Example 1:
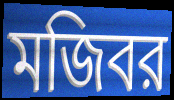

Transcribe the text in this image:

মজিবর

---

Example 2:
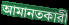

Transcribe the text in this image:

আমানতকারী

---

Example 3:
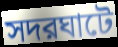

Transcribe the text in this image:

সদরঘাটে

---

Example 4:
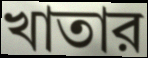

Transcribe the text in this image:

খাতার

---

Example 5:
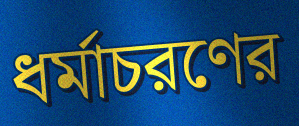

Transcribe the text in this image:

ধর্মাচরণের